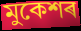
মুকেশৰ